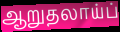
ஆறுதலாய்ப்